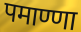
पमाण्णा